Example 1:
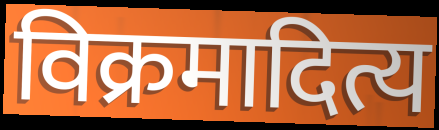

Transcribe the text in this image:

विक्रमादित्य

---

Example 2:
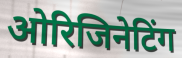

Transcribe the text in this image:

ओरिजिनेटिंग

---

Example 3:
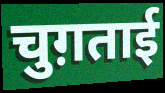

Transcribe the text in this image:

चुग़ताई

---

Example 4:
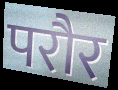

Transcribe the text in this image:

परौर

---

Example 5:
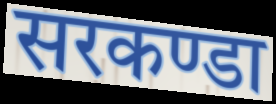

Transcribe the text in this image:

सरकण्डा